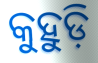
କୁହୁଡ଼ି